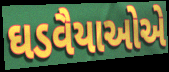
ઘડવૈયાઓએ